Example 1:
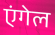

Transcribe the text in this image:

एंगेल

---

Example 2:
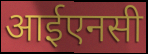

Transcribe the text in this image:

आईएनसी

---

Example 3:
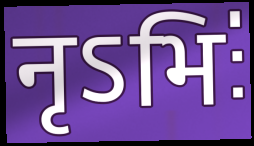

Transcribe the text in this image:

नृऽभिः॑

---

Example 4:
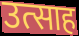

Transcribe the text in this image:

उत्‍साह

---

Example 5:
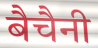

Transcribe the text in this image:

बैचैनी